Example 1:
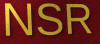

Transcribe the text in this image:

NSR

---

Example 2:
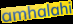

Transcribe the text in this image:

amhalahi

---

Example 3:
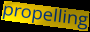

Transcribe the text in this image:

propelling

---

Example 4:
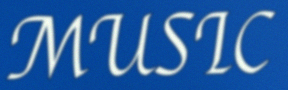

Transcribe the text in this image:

MUSIC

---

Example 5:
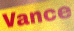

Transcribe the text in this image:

Vance